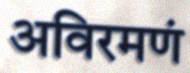
अविरमणं